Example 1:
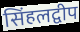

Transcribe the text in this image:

सिंहलद्वीप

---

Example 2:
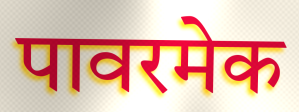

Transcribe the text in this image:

पावरमेक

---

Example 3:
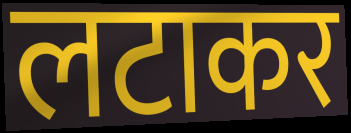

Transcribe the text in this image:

लटाकर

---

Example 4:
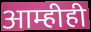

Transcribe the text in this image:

आम्हीही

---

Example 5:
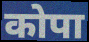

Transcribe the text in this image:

कोपा